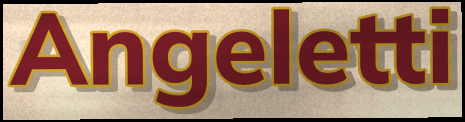
Angeletti